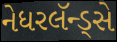
નેધરલૅન્ડ્સે